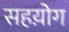
सहय़ोग